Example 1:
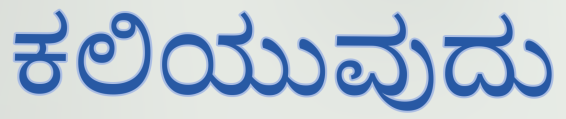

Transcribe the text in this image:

ಕಲಿಯುವುದು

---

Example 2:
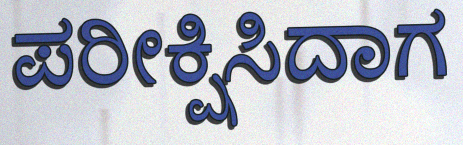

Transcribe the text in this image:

ಪರೀಕ್ಷಿಸಿದಾಗ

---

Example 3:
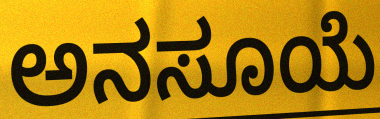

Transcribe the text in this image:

ಅನಸೂಯೆ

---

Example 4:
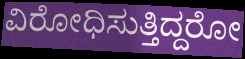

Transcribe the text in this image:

ವಿರೋಧಿಸುತ್ತಿದ್ದರೋ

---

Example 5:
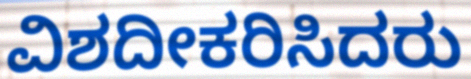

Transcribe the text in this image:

ವಿಶದೀಕರಿಸಿದರು